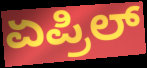
ಏಪ್ರಿಲ್